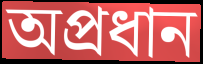
অপ্রধান